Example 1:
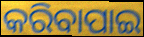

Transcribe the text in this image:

କରିବାପାଇ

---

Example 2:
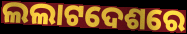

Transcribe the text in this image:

ଲଲାଟଦେଶରେ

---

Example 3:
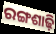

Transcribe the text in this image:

ରଙ୍ଗଶାଢ଼ି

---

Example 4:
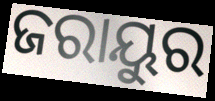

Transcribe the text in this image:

ଜରାୟୁର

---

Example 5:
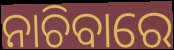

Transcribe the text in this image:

ନାଚିବାରେ